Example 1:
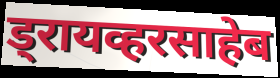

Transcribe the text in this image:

ड्रायव्हरसाहेब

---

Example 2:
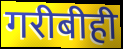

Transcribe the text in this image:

गरीबीही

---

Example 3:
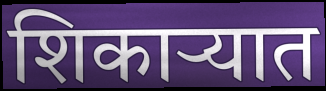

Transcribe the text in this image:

शिकाऱ्यात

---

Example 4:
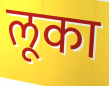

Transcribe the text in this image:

लूका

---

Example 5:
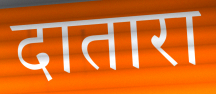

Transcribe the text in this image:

दातारा